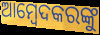
ଆମ୍ବେଦକରଙ୍କୁ